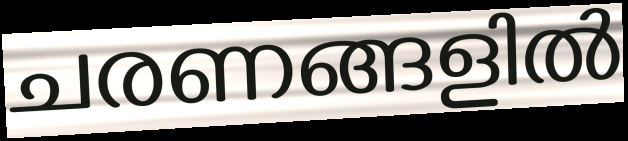
ചരണങ്ങളിൽ